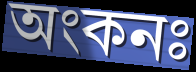
অংকনঃ